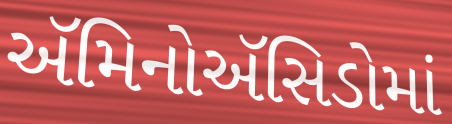
ઍમિનોઍસિડોમાં